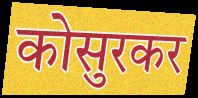
कोसुरकर